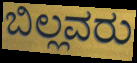
ಬಿಲ್ಲವರು